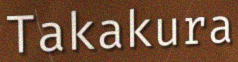
Takakura